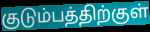
குடும்பத்திற்குள்